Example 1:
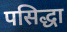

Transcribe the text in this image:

पसिद्धा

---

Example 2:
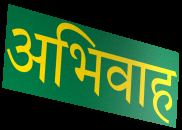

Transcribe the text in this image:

अभिवाह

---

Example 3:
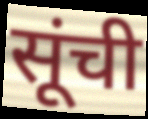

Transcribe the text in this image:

सूंची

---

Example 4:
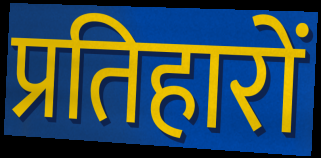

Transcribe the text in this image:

प्रतिहारों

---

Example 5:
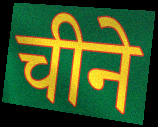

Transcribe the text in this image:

चीने